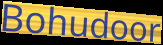
Bohudoor